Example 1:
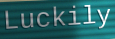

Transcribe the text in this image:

Luckily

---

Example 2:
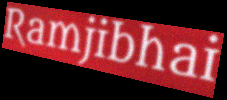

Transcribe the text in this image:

Ramjibhai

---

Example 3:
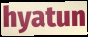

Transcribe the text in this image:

hyatun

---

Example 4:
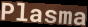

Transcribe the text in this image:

Plasma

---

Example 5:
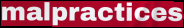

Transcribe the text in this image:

malpractices